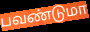
பவண்டுமா